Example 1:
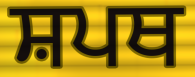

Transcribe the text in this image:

ਸ਼ਪਥ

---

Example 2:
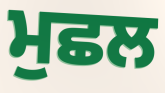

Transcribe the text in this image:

ਮੁਛਲ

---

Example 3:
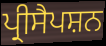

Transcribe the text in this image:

ਪ੍ਰੀਸੈਪਸ਼ਨ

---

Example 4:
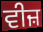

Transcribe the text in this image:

ਵੀਜ਼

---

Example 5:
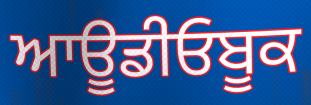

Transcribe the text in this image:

ਆਊਡੀਓਬੂਕ